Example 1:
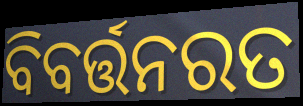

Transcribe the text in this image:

ବିବର୍ତ୍ତନରତ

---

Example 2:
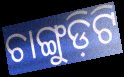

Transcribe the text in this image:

ଚାଙ୍ଗୁଡ଼ିଟି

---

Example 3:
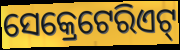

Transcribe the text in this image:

ସେକ୍ରେଟେରିଏଟ୍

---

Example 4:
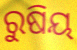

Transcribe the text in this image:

ରୁଷିୟ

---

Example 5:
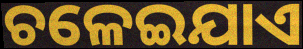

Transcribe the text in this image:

ଚଳେଇଯାଏ